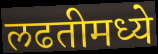
लढतीमध्ये